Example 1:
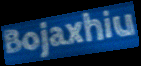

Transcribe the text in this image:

Bojaxhiu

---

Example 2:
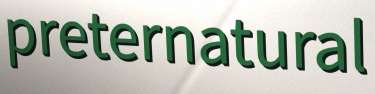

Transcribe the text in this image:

preternatural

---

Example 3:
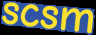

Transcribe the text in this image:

scsm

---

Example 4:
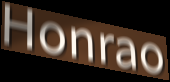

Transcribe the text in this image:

Honrao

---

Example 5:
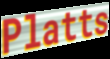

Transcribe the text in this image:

Platts